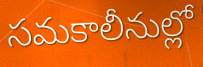
సమకాలీనుల్లో